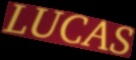
LUCAS